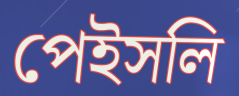
পেইসলি